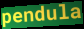
pendula